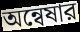
অন্বেষার